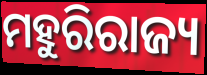
ମହୁରିରାଜ୍ୟ